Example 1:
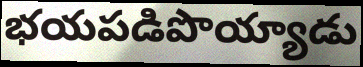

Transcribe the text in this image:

భయపడిపొయ్యాడు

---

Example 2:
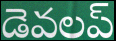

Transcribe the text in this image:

డెవలప్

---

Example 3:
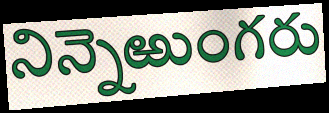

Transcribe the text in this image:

నిన్నెఱుంగరు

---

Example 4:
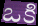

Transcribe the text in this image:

ఒకి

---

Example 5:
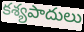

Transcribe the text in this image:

కశ్యపాదులు